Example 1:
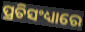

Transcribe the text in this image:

ପ୍ରତିସଂଧ୍ୟାରେ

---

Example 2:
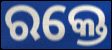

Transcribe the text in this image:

ରକ୍ତେ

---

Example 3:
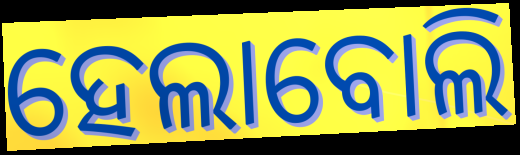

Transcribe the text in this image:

ହେଲାବୋଲି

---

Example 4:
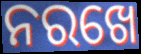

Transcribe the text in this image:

ନରଖେ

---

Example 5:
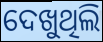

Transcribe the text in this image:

ଦେଖୁଥିଲି